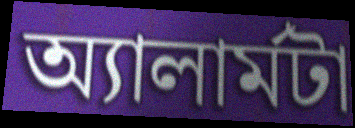
অ্যালার্মটা